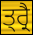
ਤ੍ਰ੍ਰੈ